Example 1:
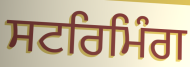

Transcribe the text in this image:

ਸਟਰਿਮਿੰਗ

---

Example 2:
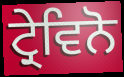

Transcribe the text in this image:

ਟ੍ਰੇਵਿਨੋ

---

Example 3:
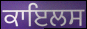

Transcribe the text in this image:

ਕਾਇਲਸ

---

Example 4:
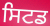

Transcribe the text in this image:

ਸਿਟਡ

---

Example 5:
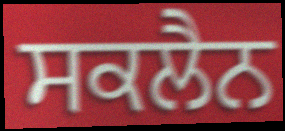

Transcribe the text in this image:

ਸਕਲੈਨ